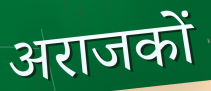
अराजकों